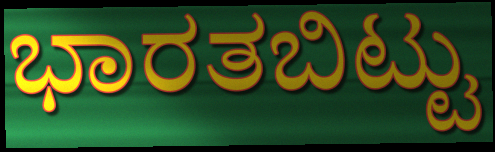
ಭಾರತಬಿಟ್ಟು